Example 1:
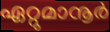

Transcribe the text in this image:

ഏറ്റുമാനൂർ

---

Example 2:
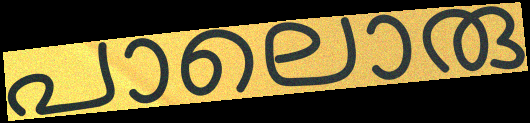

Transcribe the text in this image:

പാലൊരു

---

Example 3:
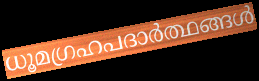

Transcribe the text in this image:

ധൂമഗ്രഹപദാർത്ഥങ്ങൾ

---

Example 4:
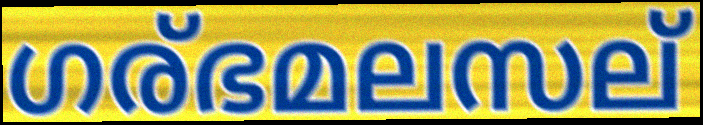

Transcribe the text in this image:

ഗര്ഭമലസല്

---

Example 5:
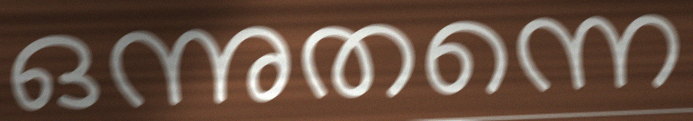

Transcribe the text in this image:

ഒന്നുതന്നെ